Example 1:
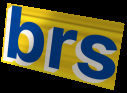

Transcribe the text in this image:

brs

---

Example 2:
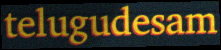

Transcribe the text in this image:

telugudesam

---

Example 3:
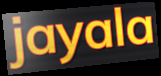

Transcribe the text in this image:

jayala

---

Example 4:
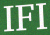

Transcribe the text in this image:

IFI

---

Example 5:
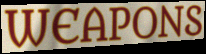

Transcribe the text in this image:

WEAPONS